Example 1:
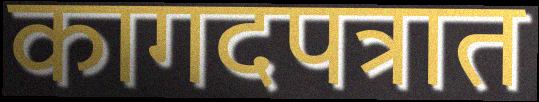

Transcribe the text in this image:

कागदपत्रात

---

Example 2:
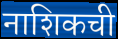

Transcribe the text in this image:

नाशिकची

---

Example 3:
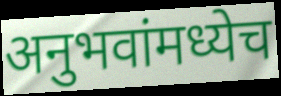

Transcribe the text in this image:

अनुभवांमध्येच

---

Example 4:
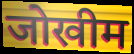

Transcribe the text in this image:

जोखीम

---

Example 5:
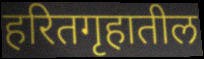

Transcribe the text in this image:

हरितगृहातील